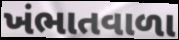
ખંભાતવાળા